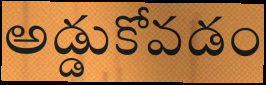
అడ్డుకోవడం